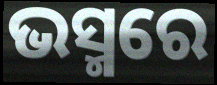
ଭସ୍ମରେ